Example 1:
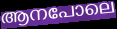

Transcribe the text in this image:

ആനപോലെ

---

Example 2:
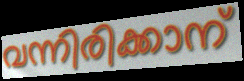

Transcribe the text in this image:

വന്നിരിക്കാന്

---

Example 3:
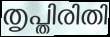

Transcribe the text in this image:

തൃപ്തിരിതി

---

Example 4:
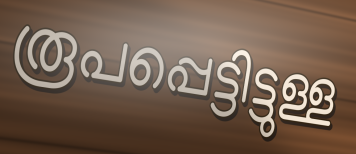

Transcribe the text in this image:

രൂപപ്പെട്ടിട്ടുള്ള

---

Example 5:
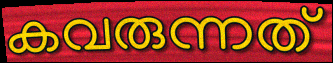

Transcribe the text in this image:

കവരുന്നത്